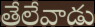
తేలేవాడు